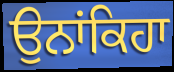
ਉਨਾਂਕਿਹਾ